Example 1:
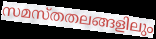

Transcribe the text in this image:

സമസ്തതലങ്ങളിലും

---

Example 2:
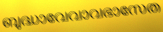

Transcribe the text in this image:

ബുദ്ധാവേവാവഭാസേത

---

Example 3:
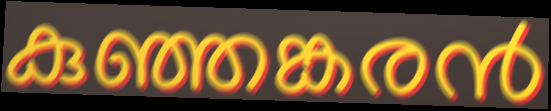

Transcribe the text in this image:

കുഞ്ഞങ്കരൻ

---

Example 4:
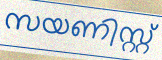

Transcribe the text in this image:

സയണിസ്റ്റ്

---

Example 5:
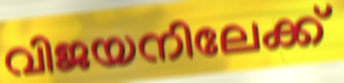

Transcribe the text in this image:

വിജയനിലേക്ക്